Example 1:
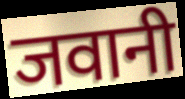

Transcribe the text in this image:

जवानी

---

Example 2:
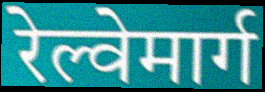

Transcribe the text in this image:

रेल्वेमार्ग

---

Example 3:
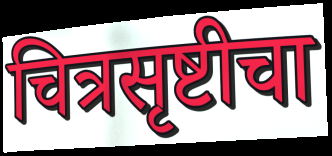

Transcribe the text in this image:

चित्रसृष्टीचा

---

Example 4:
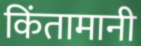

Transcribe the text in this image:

किंतामानी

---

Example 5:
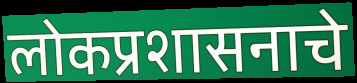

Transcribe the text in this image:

लोकप्रशासनाचे